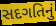
સદગતિનું